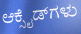
ಆಕ್ಸೈಡ್‌ಗಳು